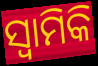
ସ୍ୱାମିକି